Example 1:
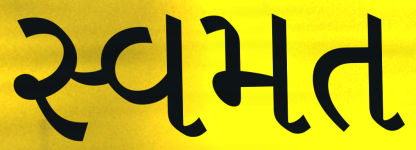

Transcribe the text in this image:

સ્વમત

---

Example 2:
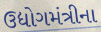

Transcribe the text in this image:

ઉદ્યોગમંત્રીના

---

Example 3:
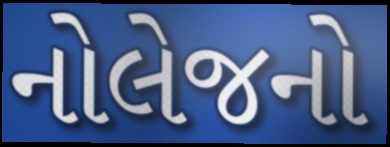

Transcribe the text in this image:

નોલેજનો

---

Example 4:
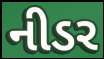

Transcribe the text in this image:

નીડર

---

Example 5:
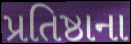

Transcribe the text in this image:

પ્રતિષ્ઠાના